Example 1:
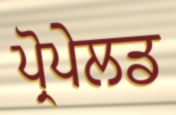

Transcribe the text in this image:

ਪ੍ਰੋਪੇਲਡ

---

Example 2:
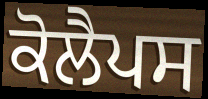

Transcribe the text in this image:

ਕੋਲੈਪਸ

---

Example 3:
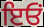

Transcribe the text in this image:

ਇਓਂ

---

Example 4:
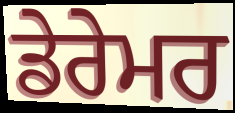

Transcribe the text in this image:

ਡੇਰੇਮਰ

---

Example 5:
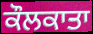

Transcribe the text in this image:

ਕੌਲਕਾਤਾ